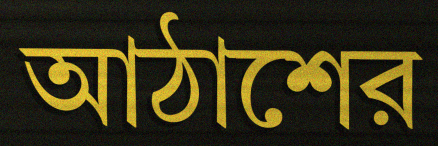
আঠাশের